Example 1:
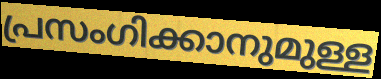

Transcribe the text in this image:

പ്രസംഗിക്കാനുമുള്ള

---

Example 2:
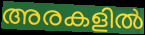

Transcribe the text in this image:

അരകളിൽ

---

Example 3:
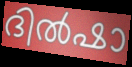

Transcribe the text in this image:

ദിൽഷാ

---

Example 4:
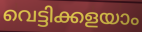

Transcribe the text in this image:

വെട്ടിക്കളയാം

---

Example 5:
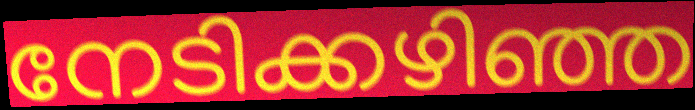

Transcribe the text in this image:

നേടിക്കഴിഞ്ഞ